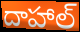
దాహాల్